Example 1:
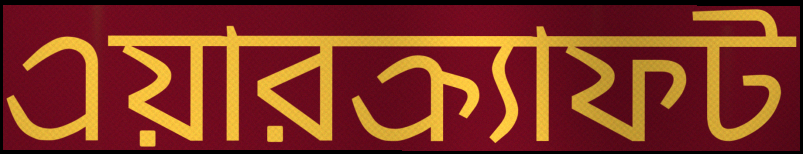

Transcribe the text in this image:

এয়ারক্র্যাফট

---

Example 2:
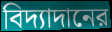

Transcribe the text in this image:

বিদ্যাদানের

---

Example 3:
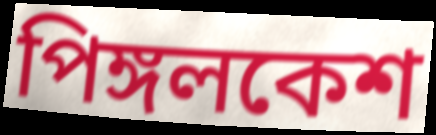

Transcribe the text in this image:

পিঙ্গলকেশ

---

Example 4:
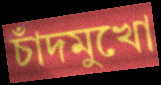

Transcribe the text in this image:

চাঁদমুখো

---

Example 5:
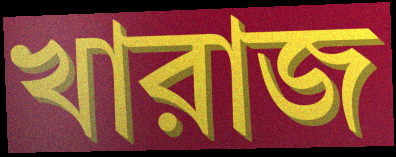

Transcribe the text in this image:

খারাজ